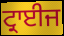
ਟ੍ਰਾਈਜ